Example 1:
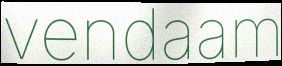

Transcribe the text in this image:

vendaam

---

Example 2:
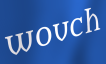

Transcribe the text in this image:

wouch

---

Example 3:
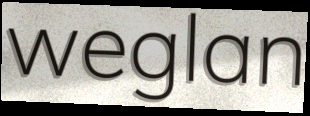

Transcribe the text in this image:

weglan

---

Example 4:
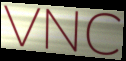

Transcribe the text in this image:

VNC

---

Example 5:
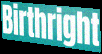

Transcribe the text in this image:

Birthright